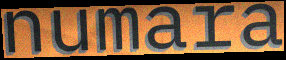
numara